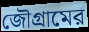
জৌগ্রামের